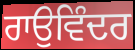
ਰਾਉਵਿੰਦਰ